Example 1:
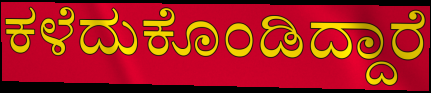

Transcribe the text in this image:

ಕಳೆದುಕೊಂಡಿದ್ದಾರೆ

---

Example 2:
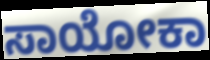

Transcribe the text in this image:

ಸಾಯೋಕಾ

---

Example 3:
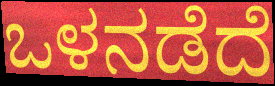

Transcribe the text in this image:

ಒಳನಡೆದೆ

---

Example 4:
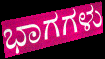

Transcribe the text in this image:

ಭಾಗಗಳು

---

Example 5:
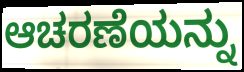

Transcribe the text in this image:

ಆಚರಣೆಯನ್ನು